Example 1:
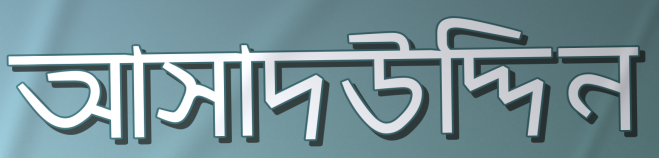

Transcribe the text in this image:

আসাদউদ্দিন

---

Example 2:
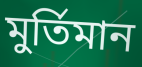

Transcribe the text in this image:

মুর্তিমান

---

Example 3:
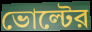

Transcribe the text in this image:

ভোল্টের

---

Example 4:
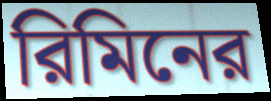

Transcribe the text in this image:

রিমিনের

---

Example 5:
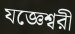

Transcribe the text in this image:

যজ্ঞেশ্বরী